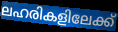
ലഹരികളിലേക്ക്